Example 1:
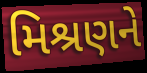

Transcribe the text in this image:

મિશ્રણને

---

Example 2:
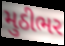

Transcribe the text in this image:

મુઠીભર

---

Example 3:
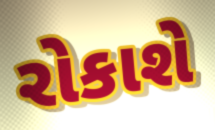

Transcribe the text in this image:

રોકાશે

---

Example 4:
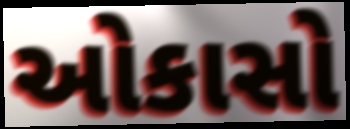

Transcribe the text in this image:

ઓકાસો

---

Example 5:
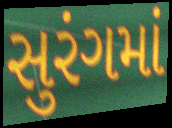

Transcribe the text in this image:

સુરંગમાં